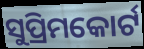
ସୁପ୍ରିମକୋର୍ଟ